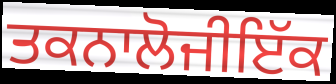
ਤਕਨਾਲੋਜੀਇੱਕ